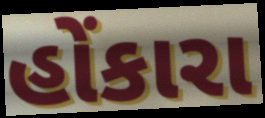
હોંકારા